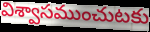
విశ్వాసముంచుటకు